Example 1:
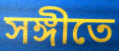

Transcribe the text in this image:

সঙ্গীতে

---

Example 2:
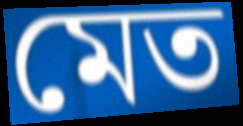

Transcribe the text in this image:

মেত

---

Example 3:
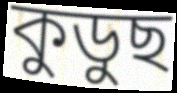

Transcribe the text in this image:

কুডুছ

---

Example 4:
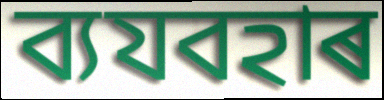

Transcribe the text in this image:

ব্যযবহাৰ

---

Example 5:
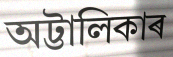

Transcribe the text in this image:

অট্টালিকাৰ